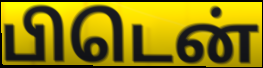
பிடென்